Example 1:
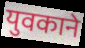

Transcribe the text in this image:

युवकाने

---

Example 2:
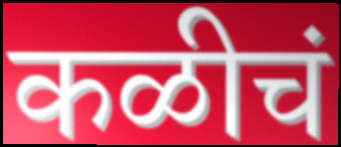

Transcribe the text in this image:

कळीचं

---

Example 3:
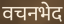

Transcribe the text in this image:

वचनभेद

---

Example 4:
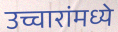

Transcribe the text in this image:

उच्चारांमध्ये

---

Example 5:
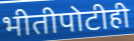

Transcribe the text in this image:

भीतीपोटीही